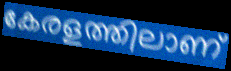
കേരളത്തിലാണ്